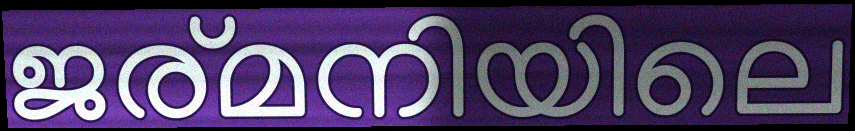
ജര്മനിയിലെ